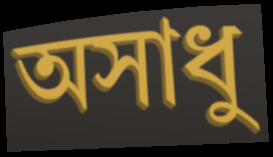
অসাধু